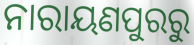
ନାରାୟଣପୁରରୁ